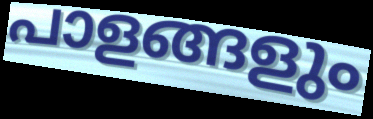
പാളങ്ങളും